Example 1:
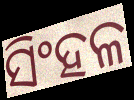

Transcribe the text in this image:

ସିଂହଳ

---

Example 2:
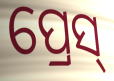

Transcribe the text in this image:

ପ୍ରେସ୍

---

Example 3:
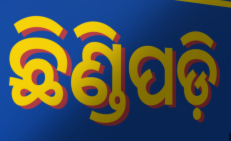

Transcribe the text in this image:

ଛିଣ୍ଡିପଡ଼ି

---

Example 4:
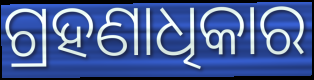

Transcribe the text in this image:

ଗ୍ରହଣାଧିକାର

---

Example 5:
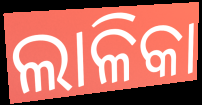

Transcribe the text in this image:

ଲାଳିକା